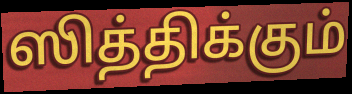
ஸித்திக்கும்